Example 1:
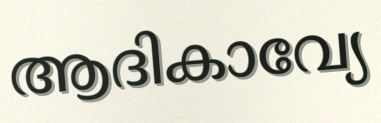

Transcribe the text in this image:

ആദികാവ്യേ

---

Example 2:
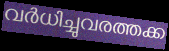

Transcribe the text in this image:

വർധിച്ചുവരത്തക്ക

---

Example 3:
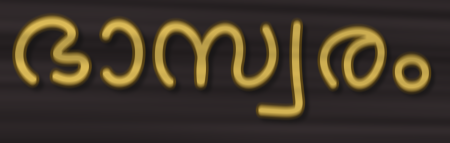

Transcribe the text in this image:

ഭാസ്വരം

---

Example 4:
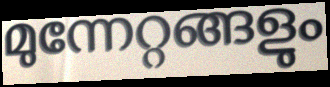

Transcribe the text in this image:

മുന്നേറ്റങ്ങളും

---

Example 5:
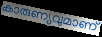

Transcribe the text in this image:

കാരുണ്യവുമാണ്